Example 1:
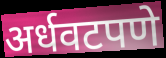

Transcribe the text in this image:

अर्धवटपणे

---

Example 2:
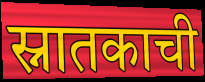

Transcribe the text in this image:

स्नातकाची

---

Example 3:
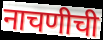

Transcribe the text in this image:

नाचणीची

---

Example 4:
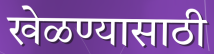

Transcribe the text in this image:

खेळण्यासाठी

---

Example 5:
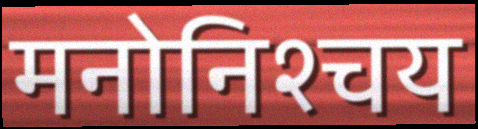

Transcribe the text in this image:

मनोनिश्चय